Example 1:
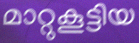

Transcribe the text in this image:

മാറ്റുകൂട്ടിയ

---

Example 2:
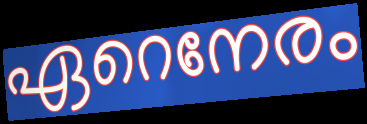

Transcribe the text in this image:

ഏറെനേരം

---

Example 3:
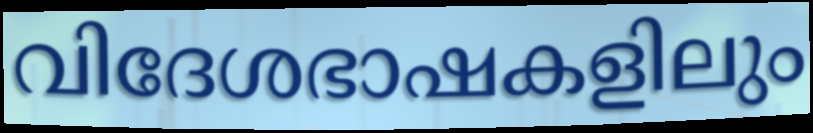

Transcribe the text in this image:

വിദേശഭാഷകളിലും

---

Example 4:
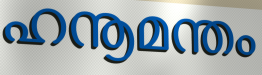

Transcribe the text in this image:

ഹനൂമന്തം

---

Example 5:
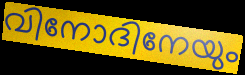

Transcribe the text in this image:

വിനോദിനേയും